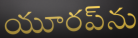
యూరప్‌ను